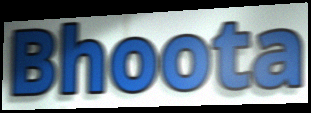
Bhoota